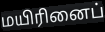
மயிரினைப்